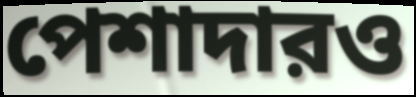
পেশাদারও